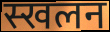
स्खलन